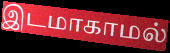
இடமாகாமல்